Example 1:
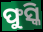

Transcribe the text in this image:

ଫୁସ୍କି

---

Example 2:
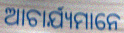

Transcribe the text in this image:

ଆଚାର୍ଯ୍ୟମାନେ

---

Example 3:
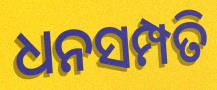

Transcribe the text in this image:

ଧନସମ୍ପତି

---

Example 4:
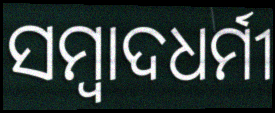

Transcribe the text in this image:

ସମ୍ବାଦଧର୍ମୀ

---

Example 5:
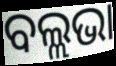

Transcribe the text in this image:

ବଲ୍ଲଭା